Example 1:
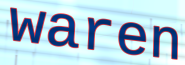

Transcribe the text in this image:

waren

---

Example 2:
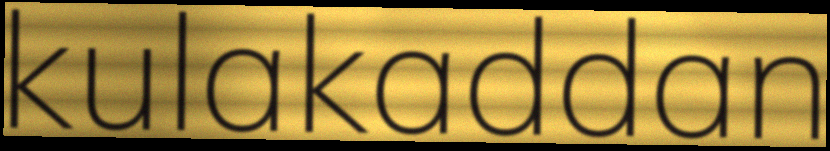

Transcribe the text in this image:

kulakaddan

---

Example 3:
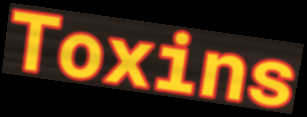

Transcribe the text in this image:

Toxins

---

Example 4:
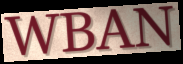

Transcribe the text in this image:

WBAN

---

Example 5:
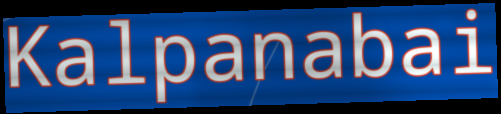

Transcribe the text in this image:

Kalpanabai